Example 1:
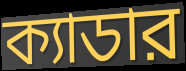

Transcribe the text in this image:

ক্যাডার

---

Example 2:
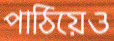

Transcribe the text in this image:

পাঠিয়েও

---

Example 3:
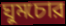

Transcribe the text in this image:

ঘুমচোর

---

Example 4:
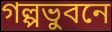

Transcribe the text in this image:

গল্পভুবনে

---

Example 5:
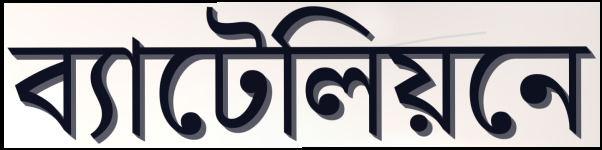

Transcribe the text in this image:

ব্যাটেলিয়নে